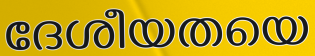
ദേശീയതയെ